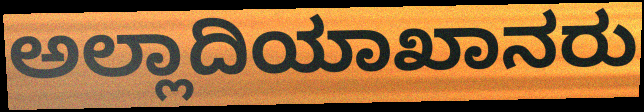
ಅಲ್ಲಾದಿಯಾಖಾನರು